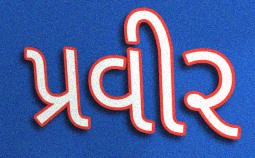
પ્રવીર